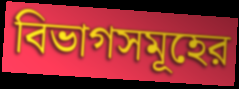
বিভাগসমূহের